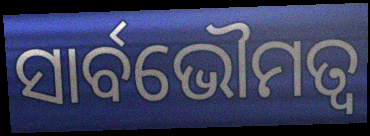
ସାର୍ବଭୌମତ୍ଵ